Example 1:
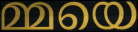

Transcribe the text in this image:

മ്മയെ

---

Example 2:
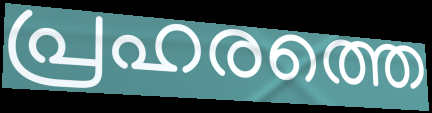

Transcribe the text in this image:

പ്രഹരത്തെ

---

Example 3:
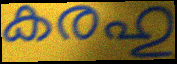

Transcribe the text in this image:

കരഹു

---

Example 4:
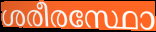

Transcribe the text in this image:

ശരീരസ്ഥോ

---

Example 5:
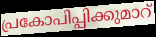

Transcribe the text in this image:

പ്രകോപിപ്പിക്കുമാറ്